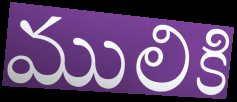
ములికి